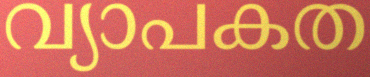
വ്യാപകത